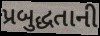
પ્રબુદ્ધતાની